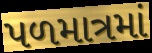
પળમાત્રમાં